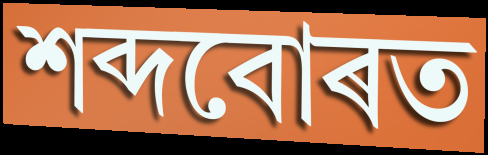
শব্দবোৰত